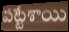
పట్టేశాయి